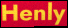
Henly